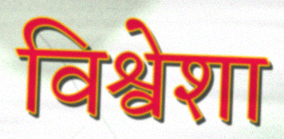
विश्वेशा